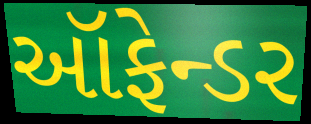
ઑફેન્ડર